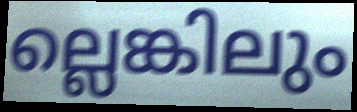
ല്ലെങ്കിലും